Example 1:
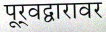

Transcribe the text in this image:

पूर्वद्वारावर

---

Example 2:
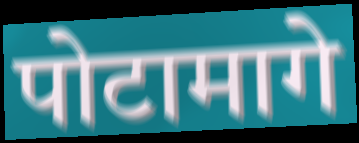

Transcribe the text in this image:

पोटामागे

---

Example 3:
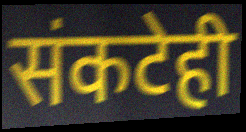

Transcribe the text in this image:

संकटेही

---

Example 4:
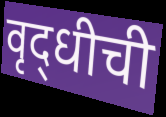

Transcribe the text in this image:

वृद्धीची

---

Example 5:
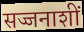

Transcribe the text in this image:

सज्जनाशीं